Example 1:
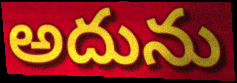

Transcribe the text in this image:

అదును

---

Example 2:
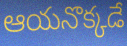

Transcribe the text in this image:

ఆయనొక్కడే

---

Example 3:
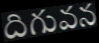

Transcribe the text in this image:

దిగువన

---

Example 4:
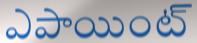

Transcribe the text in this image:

ఎపాయింట్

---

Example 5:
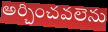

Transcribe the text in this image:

అర్చించవలెను